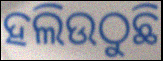
ହଲିଉଠୁଛି